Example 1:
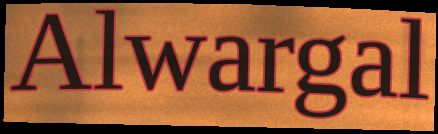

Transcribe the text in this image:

Alwargal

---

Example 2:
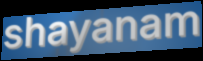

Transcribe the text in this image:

shayanam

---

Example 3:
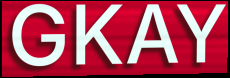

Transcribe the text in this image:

GKAY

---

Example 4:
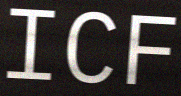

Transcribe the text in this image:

ICF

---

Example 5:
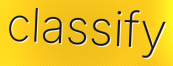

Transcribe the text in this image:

classify